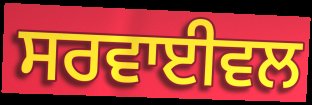
ਸਰਵਾਈਵਲ